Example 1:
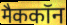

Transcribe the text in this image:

मैककॉन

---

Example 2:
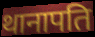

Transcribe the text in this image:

थानापति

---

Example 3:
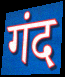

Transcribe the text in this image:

गंद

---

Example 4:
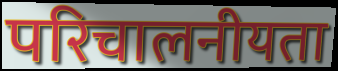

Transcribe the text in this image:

परिचालनीयता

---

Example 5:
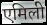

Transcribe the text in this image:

एमिली